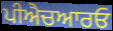
ਪੀਐਚਆਰਓ